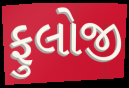
ફુલોજી